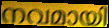
നവമായി